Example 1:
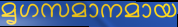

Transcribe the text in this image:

മൃഗസമാനമായ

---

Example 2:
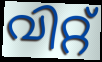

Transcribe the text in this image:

വിറ്റ്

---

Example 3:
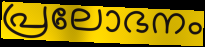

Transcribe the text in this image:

പ്രലോഭനം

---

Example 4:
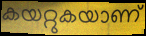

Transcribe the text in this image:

കയറ്റുകയാണ്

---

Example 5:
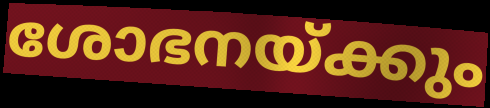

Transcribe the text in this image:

ശോഭനയ്ക്കും